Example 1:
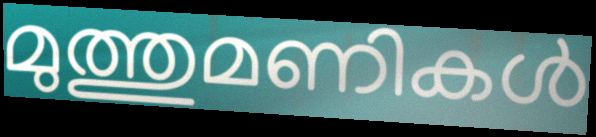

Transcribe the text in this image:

മുത്തുമണികൾ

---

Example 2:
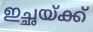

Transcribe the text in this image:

ഇച്ഛയ്ക്ക്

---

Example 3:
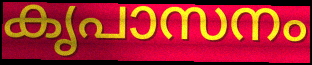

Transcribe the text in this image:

കൃപാസനം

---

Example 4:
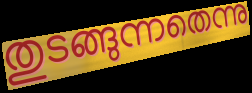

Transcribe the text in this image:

തുടങ്ങുന്നതെന്നു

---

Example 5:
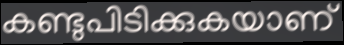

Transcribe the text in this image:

കണ്ടുപിടിക്കുകയാണ്